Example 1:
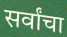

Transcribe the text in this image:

सर्वांचा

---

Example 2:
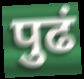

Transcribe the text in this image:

पुढं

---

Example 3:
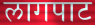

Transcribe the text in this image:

लागपाट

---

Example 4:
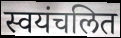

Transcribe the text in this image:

स्वयंचलित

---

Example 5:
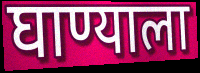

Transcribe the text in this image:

घाण्याला